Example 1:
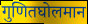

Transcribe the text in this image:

गुणितघोलमान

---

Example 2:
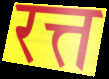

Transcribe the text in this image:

रत्त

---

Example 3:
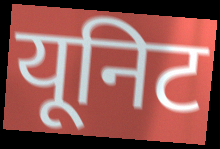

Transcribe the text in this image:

यूनिट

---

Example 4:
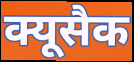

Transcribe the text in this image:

क्यूसैक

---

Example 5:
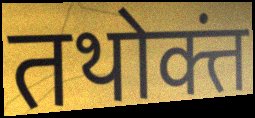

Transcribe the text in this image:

तथोक्तं